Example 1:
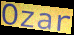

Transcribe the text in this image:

Ozar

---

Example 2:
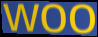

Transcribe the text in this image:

woo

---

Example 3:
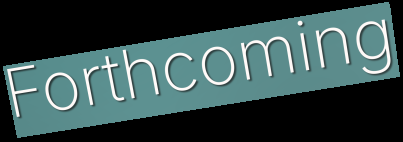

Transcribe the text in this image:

Forthcoming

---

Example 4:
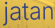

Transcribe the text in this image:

jatan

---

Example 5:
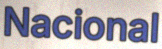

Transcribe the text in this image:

Nacional